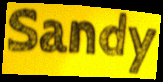
Sandy